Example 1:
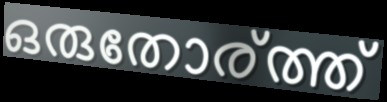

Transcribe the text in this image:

ഒരുതോര്ത്ത്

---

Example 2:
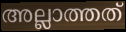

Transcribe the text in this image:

അല്ലാത്തത്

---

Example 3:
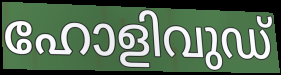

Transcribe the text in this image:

ഹോളിവുഡ്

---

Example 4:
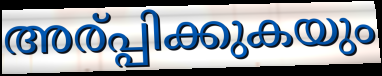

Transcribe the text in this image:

അര്പ്പിക്കുകയും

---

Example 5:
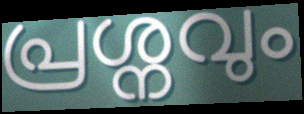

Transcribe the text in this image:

പ്രശ്നവും